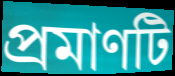
প্ৰমাণটি